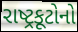
રાષ્ટ્રકૂટોનો